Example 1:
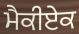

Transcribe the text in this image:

ਮੈਕੀਏਕ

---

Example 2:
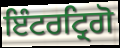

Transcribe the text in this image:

ਇੰਟਰਟ੍ਰਿਗੋ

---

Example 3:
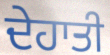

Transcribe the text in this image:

ਦੇਹਾਤੀ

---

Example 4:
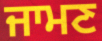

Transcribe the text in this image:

ਜਾਮਣ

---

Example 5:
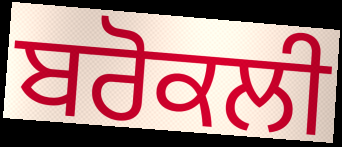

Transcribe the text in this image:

ਬਰੋਕਲੀ